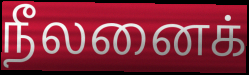
நீலனைக்